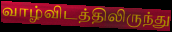
வாழ்விடத்திலிருந்து